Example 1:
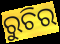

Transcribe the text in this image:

ରୁଚିର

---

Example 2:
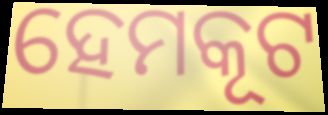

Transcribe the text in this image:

ହେମକୂଟ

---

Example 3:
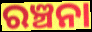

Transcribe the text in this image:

ରଞ୍ଚନା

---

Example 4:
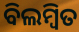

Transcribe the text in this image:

ବିଲମ୍ୱିତ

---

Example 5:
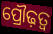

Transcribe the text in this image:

ପ୍ରୌଢ଼ତ୍ୱ